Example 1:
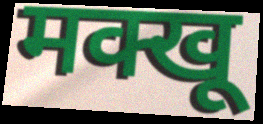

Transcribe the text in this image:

मक्खू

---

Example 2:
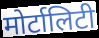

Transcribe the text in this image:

मोर्टालिटी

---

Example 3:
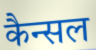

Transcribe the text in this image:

कैन्सल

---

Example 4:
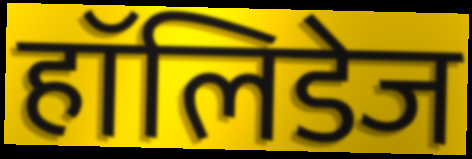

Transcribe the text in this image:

हॉलिडेज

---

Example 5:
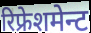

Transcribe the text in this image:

रिफ्रेशमेन्ट